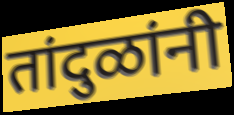
तांदुळांनी